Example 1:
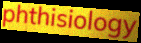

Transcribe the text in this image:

phthisiology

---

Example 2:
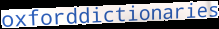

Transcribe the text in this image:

oxforddictionaries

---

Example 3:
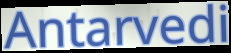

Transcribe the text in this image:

Antarvedi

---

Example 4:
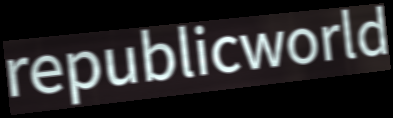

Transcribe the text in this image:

republicworld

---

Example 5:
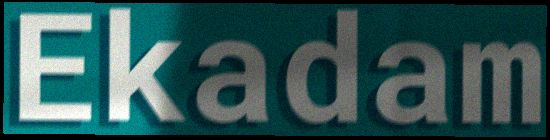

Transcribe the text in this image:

Ekadam